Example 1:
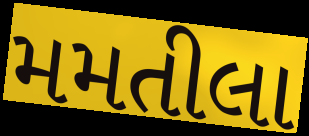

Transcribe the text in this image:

મમતીલા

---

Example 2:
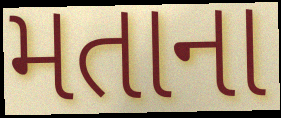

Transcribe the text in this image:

મતાના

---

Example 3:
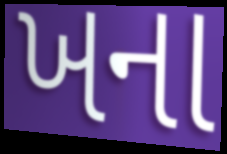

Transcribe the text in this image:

ખના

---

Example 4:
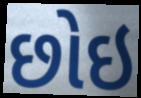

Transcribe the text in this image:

છોઇ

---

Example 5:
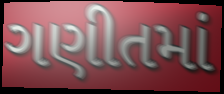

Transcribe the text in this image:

ગણીતમાં